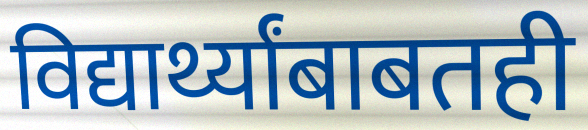
विद्यार्थ्यांबाबतही